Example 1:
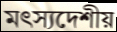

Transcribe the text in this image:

মৎস্যদেশীয়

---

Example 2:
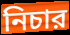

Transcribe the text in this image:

নিচার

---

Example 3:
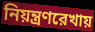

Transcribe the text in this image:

নিয়ন্ত্রণরেখায়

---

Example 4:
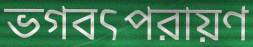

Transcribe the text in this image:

ভগবৎপরায়ণ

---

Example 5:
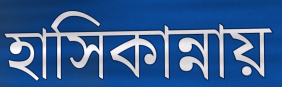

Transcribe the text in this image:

হাসিকান্নায়